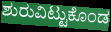
ಶುರುವಿಟ್ಟುಕೊಂಡ